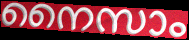
നൈസാം